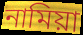
নামিয়া